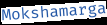
Mokshamarga